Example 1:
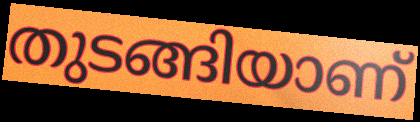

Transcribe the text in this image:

തുടങ്ങിയാണ്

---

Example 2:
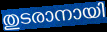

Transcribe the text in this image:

തുടരാനായി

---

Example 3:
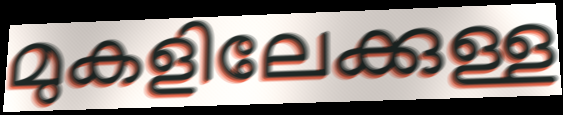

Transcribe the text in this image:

മുകളിലേക്കുള്ള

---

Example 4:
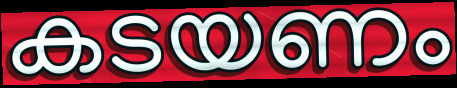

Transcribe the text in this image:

കടയണം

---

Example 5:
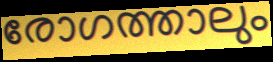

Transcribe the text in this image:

രോഗത്താലും